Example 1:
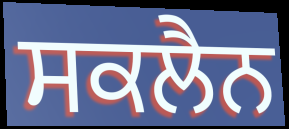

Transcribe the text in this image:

ਸਕਲੈਨ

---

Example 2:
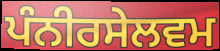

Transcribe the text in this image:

ਪੰਨੀਰਸੇਲਵਮ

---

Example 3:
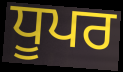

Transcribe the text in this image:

ਧੂਪਰ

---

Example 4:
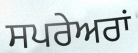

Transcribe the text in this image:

ਸਪਰੇਅਰਾਂ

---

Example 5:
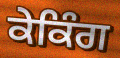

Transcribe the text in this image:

ਕੇਕਿੰਗ